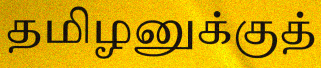
தமிழனுக்குத்